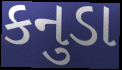
કનુડા